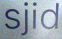
sjid